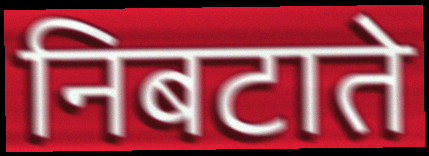
निबटाते